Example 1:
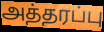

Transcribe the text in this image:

அத்தரப்பு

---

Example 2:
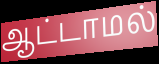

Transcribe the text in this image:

ஆட்டாமல்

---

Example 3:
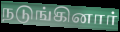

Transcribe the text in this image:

நடுங்கினார்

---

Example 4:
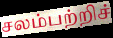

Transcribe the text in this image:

சலம்பற்றிச்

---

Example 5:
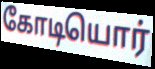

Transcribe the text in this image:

கோடியொர்